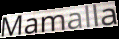
Mamalla